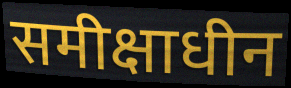
समीक्षाधीन